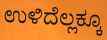
ಉಳಿದೆಲ್ಲಕ್ಕೂ